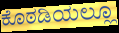
ಕೊಠಡಿಯಲ್ಲೂ